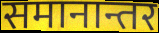
समानान्तर